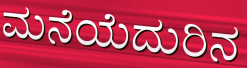
ಮನೆಯೆದುರಿನ